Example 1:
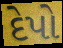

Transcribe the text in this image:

દેપો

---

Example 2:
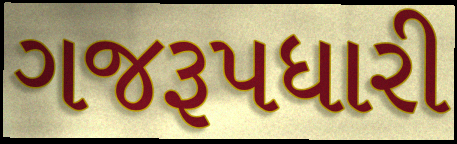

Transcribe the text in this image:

ગજરૂપધારી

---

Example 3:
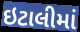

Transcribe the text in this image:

ઇટાલીમાં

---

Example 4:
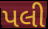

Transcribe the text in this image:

પલી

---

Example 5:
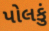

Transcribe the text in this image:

પોલકું